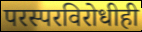
परस्परविरोधीही